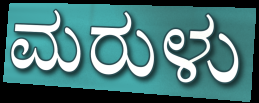
ಮರುಳು